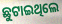
ଛୁଟାଇଥିଲେ